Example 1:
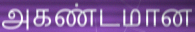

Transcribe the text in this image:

அகண்டமான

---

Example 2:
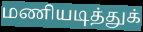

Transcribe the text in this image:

மணியடித்துக்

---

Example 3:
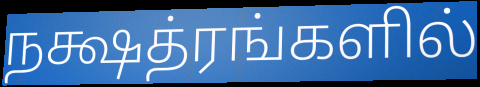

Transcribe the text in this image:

நக்ஷத்ரங்களில்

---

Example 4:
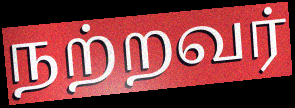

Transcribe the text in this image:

நற்றவர்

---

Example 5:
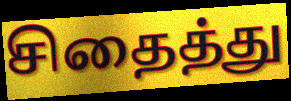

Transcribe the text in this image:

சிதைத்து